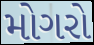
મોગરો